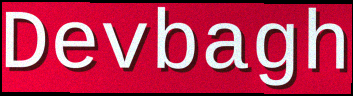
Devbagh